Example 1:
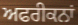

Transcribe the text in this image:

ਅਫਰੀਕਨਾਂ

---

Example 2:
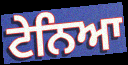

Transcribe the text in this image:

ਟੇਨਿਆ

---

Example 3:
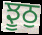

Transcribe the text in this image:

ਝੂਠੁ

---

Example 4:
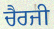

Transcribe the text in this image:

ਚੈਰਜੀ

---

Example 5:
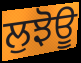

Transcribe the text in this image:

ਲੁਝੋਊ